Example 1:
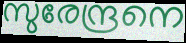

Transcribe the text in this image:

സുരേന്ദ്രനെ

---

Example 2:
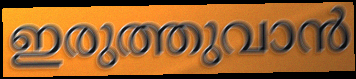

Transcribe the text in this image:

ഇരുത്തുവാൻ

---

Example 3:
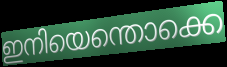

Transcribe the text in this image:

ഇനിയെന്തൊക്കെ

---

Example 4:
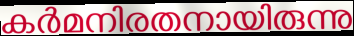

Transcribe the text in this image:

കർമനിരതനായിരുന്നു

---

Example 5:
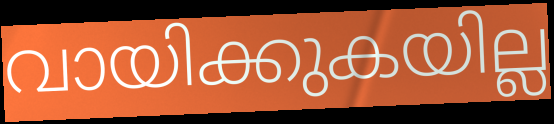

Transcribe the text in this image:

വായിക്കുകയില്ല